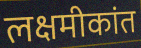
लक्षमीकांत